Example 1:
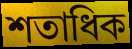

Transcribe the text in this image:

শতাধিক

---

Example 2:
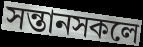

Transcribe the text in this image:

সন্তানসকলে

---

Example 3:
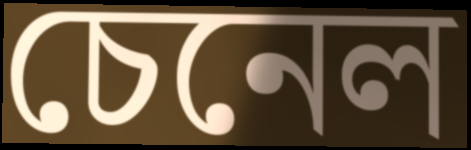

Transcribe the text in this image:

চেনেল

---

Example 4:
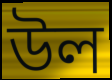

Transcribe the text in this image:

উল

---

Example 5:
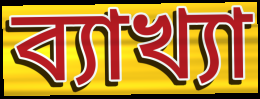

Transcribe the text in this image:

ব্যাখ্যা